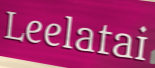
Leelatai